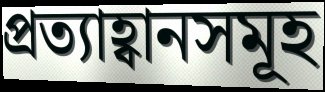
প্ৰত্যাহ্বানসমূহ